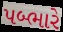
પબ્ભારે